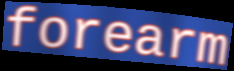
forearm